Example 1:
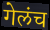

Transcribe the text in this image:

गेलंच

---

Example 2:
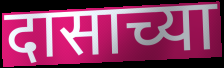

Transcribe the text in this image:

दासाच्या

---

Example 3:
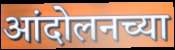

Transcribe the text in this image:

आंदोलनच्या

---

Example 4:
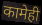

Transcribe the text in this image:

कामेही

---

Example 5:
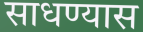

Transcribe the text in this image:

साधण्यास